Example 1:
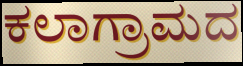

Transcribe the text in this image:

ಕಲಾಗ್ರಾಮದ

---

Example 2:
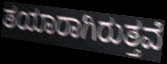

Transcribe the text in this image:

ತಯಾರಾಗಿರುತ್ತವೆ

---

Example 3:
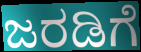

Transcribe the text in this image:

ಜರಡಿಗೆ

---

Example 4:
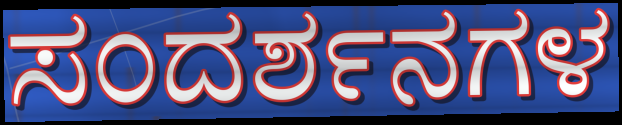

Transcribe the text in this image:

ಸಂದರ್ಶನಗಳ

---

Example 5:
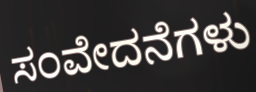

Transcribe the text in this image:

ಸಂವೇದನೆಗಳು